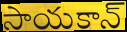
సాయకాన్